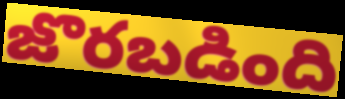
జొరబడింది